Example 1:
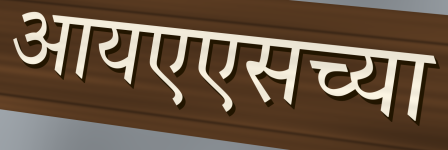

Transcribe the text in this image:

आयएएसच्या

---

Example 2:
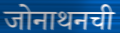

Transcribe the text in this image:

जोनाथनची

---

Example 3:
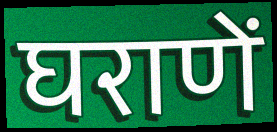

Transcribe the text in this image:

घराणें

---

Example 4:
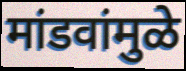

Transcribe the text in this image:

मांडवांमुळे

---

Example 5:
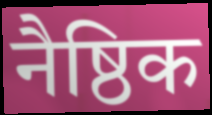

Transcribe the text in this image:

नैष्ठिक